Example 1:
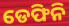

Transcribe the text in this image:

ଡେଫିନି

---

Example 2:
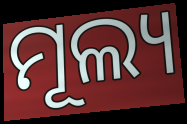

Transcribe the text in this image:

ମୂଲ୍ୟ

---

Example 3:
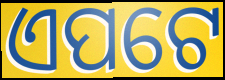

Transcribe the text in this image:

ଏପଟେ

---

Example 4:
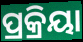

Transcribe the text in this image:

ପ୍ରକ୍ରିୟା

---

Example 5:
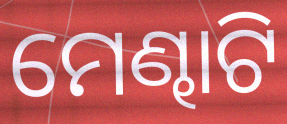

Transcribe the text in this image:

ମେଣ୍ଢାଟି